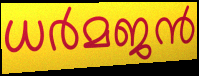
ധർമജൻ